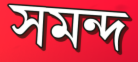
সমন্দ